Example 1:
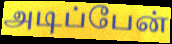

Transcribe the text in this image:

அடிப்பேன்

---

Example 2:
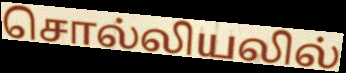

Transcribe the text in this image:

சொல்லியலில்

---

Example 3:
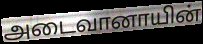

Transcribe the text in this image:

அடைவானாயின்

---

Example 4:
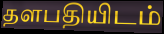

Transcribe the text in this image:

தளபதியிடம்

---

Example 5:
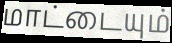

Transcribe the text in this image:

மாட்டையும்